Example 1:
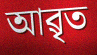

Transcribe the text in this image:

আৱৃত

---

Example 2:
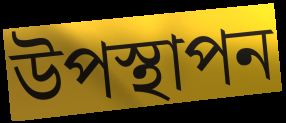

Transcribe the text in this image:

উপস্থাপন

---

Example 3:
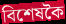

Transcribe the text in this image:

বিশেষকৈ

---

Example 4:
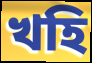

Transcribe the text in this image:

খহি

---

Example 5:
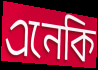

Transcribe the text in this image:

এনেকি